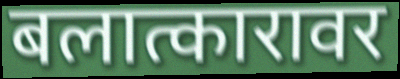
बलात्कारावर